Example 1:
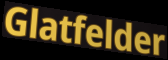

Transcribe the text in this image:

Glatfelder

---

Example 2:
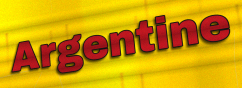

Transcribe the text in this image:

Argentine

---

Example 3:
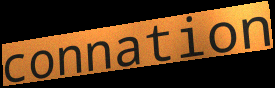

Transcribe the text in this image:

connation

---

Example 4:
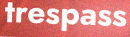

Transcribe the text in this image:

trespass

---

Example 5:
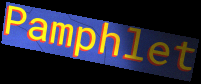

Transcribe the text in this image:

Pamphlet